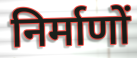
निर्माणों